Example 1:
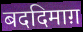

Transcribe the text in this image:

बददिमाग़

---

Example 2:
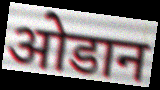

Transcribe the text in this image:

ओडान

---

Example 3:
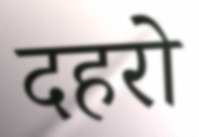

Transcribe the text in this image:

दहरो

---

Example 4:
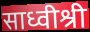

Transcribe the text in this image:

साध्वीश्री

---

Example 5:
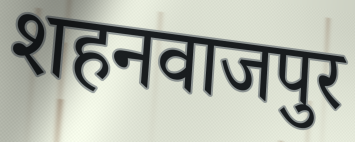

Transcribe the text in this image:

शहनवाजपुर